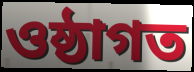
ওষ্ঠাগত